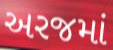
અરજમાં